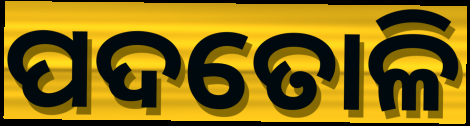
ପଦତୋଳି